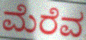
ಮೆರೆವ